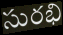
సురభి